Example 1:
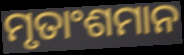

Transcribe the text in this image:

ମୃତାଂଶମାନ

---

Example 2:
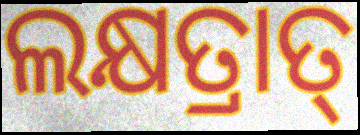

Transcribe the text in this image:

ଲକ୍ଷତ୍ରାତ୍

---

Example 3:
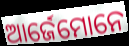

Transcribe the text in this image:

ଆର୍ଜେମୋନେ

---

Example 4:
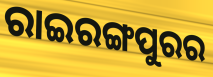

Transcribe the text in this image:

ରାଇରଙ୍ଗପୁରର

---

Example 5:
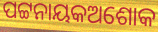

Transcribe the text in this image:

ପଟ୍ଟନାୟକଅଶୋକ